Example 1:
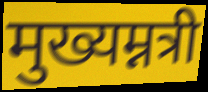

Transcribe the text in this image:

मुख्यम्नत्री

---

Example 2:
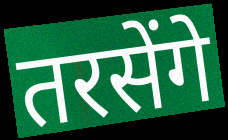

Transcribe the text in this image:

तरसेंगे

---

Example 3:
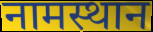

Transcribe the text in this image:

नामस्थान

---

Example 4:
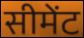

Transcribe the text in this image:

सीमेंट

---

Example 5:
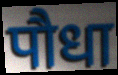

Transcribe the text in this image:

पौधा